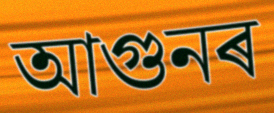
আগুনৰ